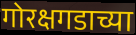
गोरक्षगडाच्या